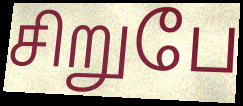
சிறுபே